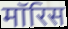
मॉरिस